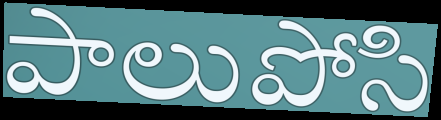
పాలుపోసి